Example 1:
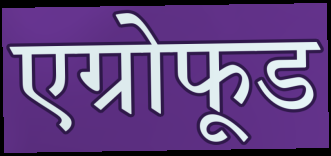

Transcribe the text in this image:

एग्रोफूड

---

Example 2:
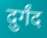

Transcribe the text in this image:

दुर्गंद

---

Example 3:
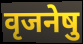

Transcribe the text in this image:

वृजनेषु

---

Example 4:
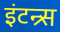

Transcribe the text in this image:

इंटन्र्स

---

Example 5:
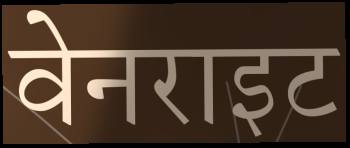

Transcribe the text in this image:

वेनराइट